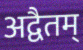
अद्वैतम्